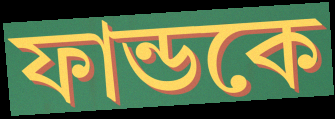
ফান্ডকে